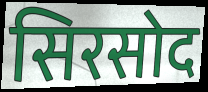
सिरसोद